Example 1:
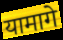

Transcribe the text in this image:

यामागे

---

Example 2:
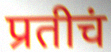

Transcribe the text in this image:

प्रतीचं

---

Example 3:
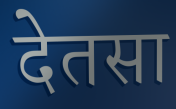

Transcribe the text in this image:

देतसा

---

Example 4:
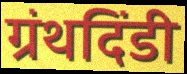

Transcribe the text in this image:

ग्रंथदिंडी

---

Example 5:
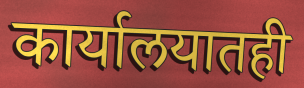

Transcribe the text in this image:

कार्यालयातही